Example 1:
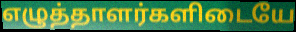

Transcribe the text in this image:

எழுத்தாளர்களிடையே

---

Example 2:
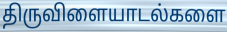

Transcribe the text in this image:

திருவிளையாடல்களை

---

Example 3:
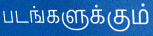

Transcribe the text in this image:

படங்களுக்கும்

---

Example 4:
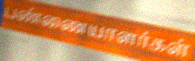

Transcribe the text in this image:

பண்ணையாளர்கள்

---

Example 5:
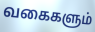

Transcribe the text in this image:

வகைகளும்